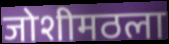
जोशीमठला